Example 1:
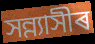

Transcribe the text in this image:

সন্ন্যাসীৰ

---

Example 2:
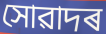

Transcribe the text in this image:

সোৱাদৰ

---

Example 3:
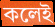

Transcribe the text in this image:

কলেই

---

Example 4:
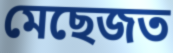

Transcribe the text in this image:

মেছেজত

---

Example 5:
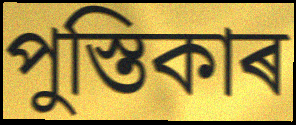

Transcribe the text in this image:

পুস্তিকাৰ